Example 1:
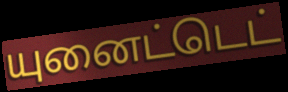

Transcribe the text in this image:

யுனைட்டெட்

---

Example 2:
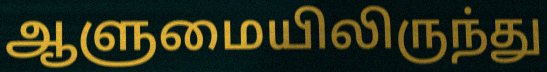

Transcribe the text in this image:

ஆளுமையிலிருந்து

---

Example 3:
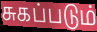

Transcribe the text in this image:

சுகப்படும்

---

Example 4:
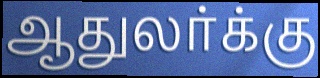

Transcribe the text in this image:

ஆதுலர்க்கு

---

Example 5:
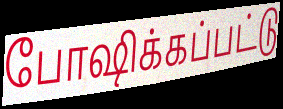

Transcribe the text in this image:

போஷிக்கப்பட்டு